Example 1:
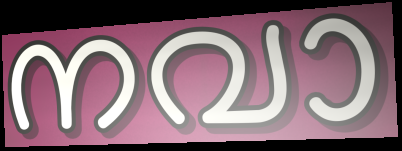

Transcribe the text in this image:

നവാ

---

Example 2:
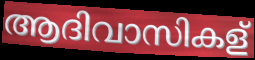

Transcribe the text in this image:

ആദിവാസികള്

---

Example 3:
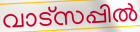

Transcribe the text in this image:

വാട്സപ്പിൽ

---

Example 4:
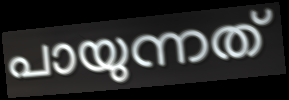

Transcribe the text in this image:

പായുന്നത്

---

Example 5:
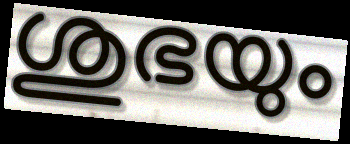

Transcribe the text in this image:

ശുഭയും